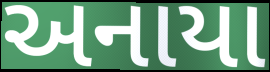
અનાયા